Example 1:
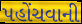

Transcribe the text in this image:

પહોંચવાની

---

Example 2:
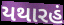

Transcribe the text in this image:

યથારહં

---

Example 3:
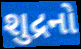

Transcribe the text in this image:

શુદ્રનો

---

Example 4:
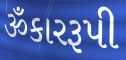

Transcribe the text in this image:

ૐકારરૂપી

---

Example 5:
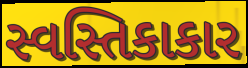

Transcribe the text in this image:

સ્વસ્તિકાકાર